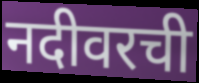
नदीवरची